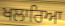
ਖਲਾਰਿਆ